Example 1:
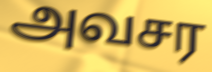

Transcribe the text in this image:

அவசர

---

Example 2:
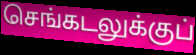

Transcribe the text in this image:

செங்கடலுக்குப்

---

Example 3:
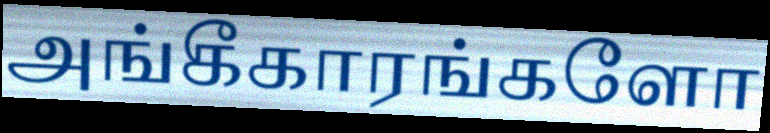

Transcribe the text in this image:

அங்கீகாரங்களோ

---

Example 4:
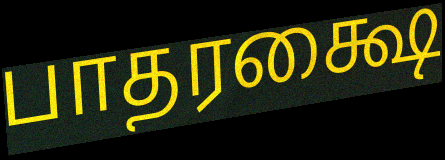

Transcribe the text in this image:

பாதரக்ஷை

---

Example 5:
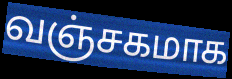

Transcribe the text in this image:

வஞ்சகமாக